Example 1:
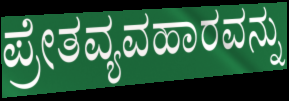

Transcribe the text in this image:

ಪ್ರೇತವ್ಯವಹಾರವನ್ನು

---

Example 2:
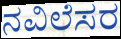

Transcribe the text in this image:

ನವಿಲೆಸರ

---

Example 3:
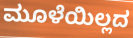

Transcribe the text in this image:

ಮೂಳೆಯಿಲ್ಲದ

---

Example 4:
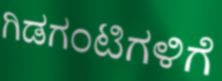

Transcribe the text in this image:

ಗಿಡಗಂಟಿಗಳಿಗೆ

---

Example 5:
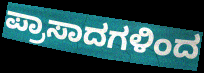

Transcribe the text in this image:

ಪ್ರಾಸಾದಗಳಿಂದ